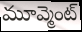
మూవ్మెంట్